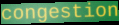
congestion